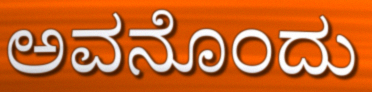
ಅವನೊಂದು